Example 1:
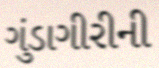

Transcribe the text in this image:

ગુંડાગીરીની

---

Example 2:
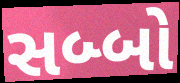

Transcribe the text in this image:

સબ્બો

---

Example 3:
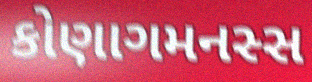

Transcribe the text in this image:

કોણાગમનસ્સ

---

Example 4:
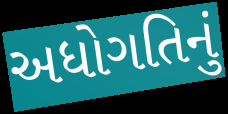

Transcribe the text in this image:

અધોગતિનું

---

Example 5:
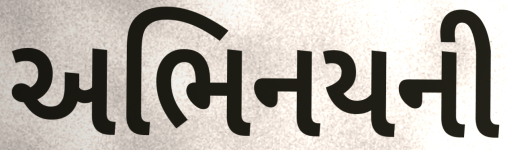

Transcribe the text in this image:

અભિનયની